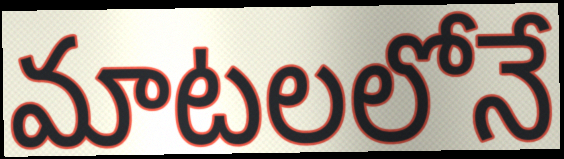
మాటలలోనే